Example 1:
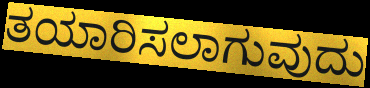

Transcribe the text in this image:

ತಯಾರಿಸಲಾಗುವುದು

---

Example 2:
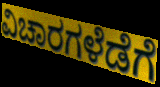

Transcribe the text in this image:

ವಿಚಾರಗಳೆಡೆಗೆ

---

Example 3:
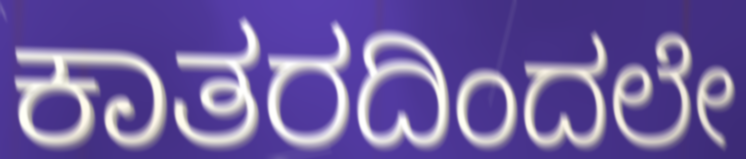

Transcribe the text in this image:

ಕಾತರದಿಂದಲೇ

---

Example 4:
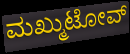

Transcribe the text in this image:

ಮಖ್ಮುಟೋವ್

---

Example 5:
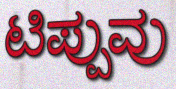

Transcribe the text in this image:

ಟಿಪ್ಪುವು